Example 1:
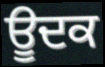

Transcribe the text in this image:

ਊਦਕ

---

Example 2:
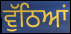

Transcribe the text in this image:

ਵੁੱਠਿਆਂ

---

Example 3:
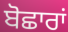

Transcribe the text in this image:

ਬੋਛਾਰਾਂ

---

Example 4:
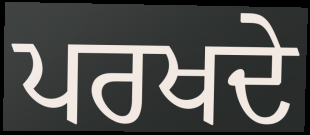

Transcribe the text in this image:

ਪਰਖਦੇ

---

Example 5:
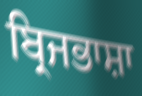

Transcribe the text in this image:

ਬ੍ਰਿਜਭਾਸ਼ਾ